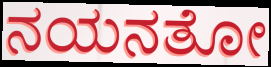
ನಯನತೋ